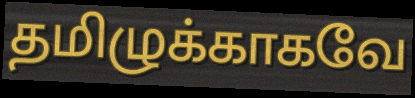
தமிழுக்காகவே